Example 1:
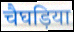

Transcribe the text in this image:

चैघड़िया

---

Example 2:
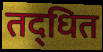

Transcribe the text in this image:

तद्धित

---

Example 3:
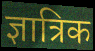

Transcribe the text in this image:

ज्ञात्रिक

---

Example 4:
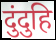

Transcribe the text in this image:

दुंदुहि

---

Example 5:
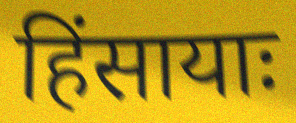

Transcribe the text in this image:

हिंसायाः